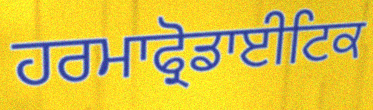
ਹਰਮਾਫ੍ਰੋਡਾਈਟਿਕ